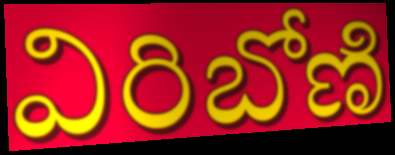
విరిబోణి